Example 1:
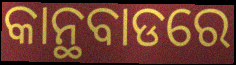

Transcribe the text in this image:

କାନ୍ଥବାଡରେ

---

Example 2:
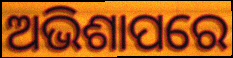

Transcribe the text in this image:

ଅଭିଶାପରେ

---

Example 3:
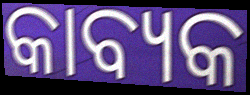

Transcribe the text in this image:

କାବ୍ୟକ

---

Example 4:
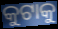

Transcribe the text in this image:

କୁଟାକୁ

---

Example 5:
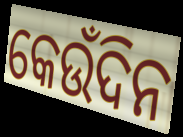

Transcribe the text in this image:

କେଉଁଦିନ